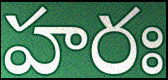
హరః